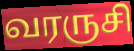
வரருசி